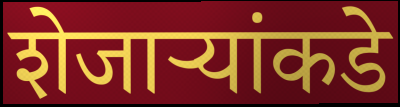
शेजाऱ्यांकडे